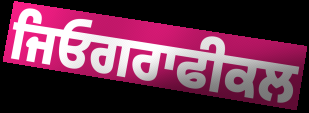
ਜਿਓਗਰਾਫੀਕਲ